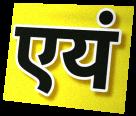
एयं